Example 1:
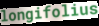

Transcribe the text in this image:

longifolius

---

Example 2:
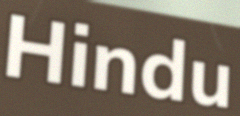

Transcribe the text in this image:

Hindu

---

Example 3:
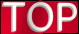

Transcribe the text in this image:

TOP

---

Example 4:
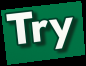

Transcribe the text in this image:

Try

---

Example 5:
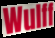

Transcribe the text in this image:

Wulff